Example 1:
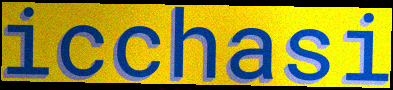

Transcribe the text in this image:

icchasi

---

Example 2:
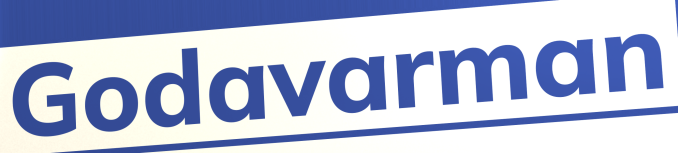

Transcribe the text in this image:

Godavarman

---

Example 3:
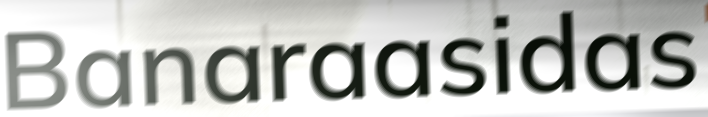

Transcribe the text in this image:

Banaraasidas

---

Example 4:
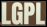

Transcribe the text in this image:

LGPL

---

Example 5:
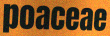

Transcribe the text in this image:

poaceae